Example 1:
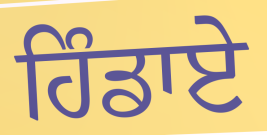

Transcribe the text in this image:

ਹਿੰਡਾਏ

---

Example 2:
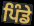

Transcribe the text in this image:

ਪਿੰਡੇ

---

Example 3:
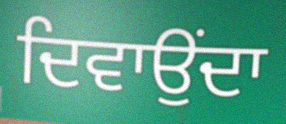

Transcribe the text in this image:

ਦਿਵਾਉਂਦਾ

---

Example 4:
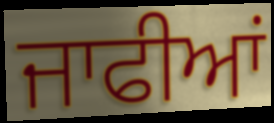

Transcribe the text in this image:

ਜਾਫੀਆਂ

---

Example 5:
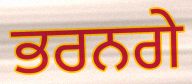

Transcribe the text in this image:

ਭਰਨਗੇ